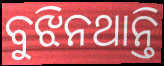
ବୁଝିନଥାନ୍ତି